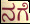
ನಗೆ